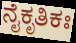
ನೈಕೃತಿಕಃ